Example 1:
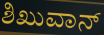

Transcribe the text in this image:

ಶಿಖುವಾನ್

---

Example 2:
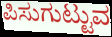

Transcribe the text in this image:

ಪಿಸುಗುಟ್ಟುವ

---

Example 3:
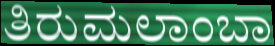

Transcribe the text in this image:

ತಿರುಮಲಾಂಬಾ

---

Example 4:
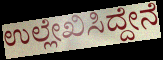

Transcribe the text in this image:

ಉಲ್ಲೇಖಿಸಿದ್ದೇನೆ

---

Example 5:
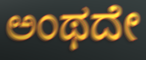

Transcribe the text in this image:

ಅಂಥದೇ